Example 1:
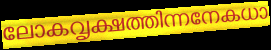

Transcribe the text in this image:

ലോകവൃക്ഷത്തിന്നനേകധാ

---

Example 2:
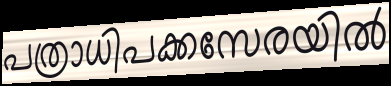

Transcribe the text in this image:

പത്രാധിപക്കസേരയിൽ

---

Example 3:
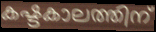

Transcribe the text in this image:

കഷ്ടകാലത്തിന്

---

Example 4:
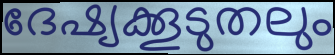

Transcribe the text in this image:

ദേഷ്യക്കൂടുതലും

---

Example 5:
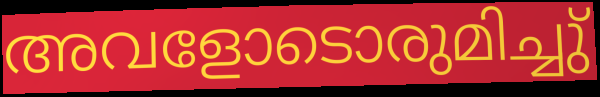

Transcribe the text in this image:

അവളോടൊരുമിച്ചു്